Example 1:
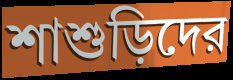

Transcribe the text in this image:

শাশুড়িদের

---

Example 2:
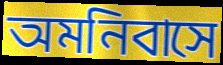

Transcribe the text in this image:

অমনিবাসে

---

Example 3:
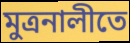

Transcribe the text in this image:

মুত্রনালীতে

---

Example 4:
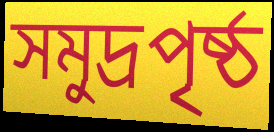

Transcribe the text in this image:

সমুদ্রপৃষ্ঠ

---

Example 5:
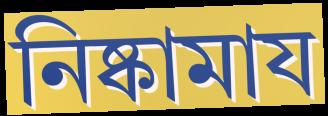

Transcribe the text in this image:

নিষ্কামায